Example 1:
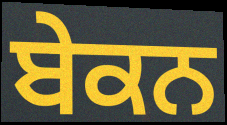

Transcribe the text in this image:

ਬੇਕਨ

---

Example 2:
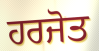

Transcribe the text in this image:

ਹਰਜੋਤ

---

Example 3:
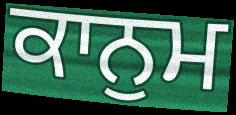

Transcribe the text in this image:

ਕਾਨੁਮ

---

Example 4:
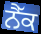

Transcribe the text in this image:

ਨੈੱਕ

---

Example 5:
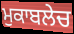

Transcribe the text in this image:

ਮੁਕਾਬਲੇਚ